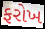
ફરોખ